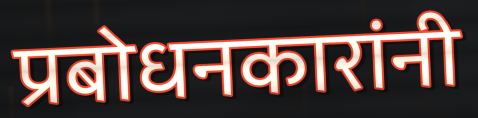
प्रबोधनकारांनी